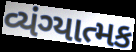
વ્યંગ્યાત્મક